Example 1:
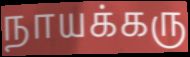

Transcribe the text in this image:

நாயக்கரு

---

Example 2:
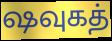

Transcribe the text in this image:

ஷவுகத்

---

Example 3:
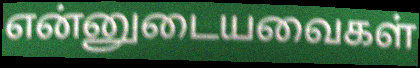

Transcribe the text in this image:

என்னுடையவைகள்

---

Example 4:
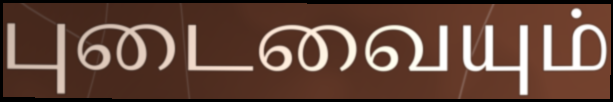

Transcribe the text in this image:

புடைவையும்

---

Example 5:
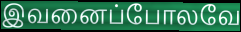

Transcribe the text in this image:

இவனைப்போலவே